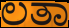
ಲತಾ